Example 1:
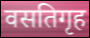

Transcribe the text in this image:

वसतिगृह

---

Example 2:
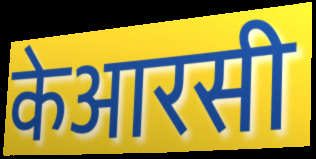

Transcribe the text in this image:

केआरसी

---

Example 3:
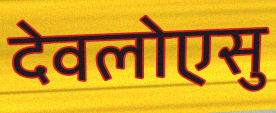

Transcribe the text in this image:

देवलोएसु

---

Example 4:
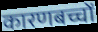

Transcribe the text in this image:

कारणबच्चों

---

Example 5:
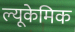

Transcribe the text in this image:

ल्यूकेमिक